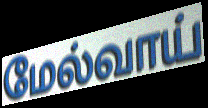
மேல்வாய்